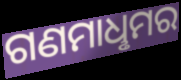
ଗଣମାଧୢମର